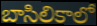
బాసిలికాలో